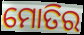
ମୋତିର